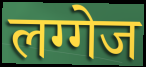
लग्गेज